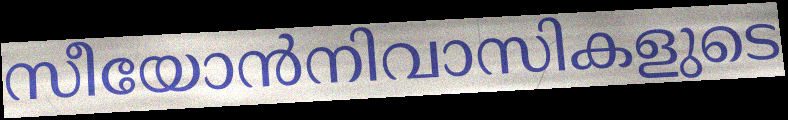
സീയോൻനിവാസികളുടെ